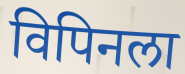
विपिनला